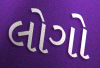
લોગો